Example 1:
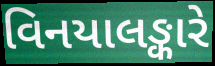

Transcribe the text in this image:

વિનયાલઙ્કારે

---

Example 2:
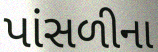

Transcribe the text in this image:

પાંસળીના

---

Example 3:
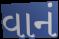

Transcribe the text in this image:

વાનં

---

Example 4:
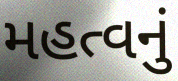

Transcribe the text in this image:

મહત્વનું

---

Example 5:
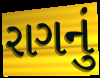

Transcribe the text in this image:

રાગનું